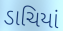
ડાચિયાં